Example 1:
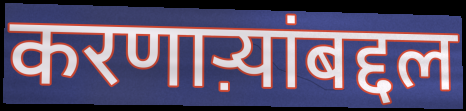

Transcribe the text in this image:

करणाऱ्‍यांबद्दल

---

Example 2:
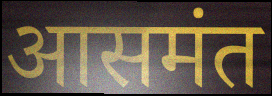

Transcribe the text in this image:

आसमंत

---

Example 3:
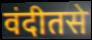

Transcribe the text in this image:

वंदीतसे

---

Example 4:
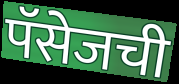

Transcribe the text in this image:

पॅसेजची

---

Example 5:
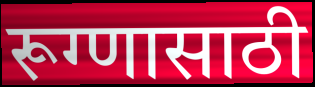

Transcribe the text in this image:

रूग्णासाठी